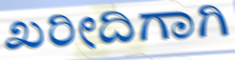
ಖರೀದಿಗಾಗಿ